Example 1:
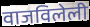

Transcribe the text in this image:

वाजविलेली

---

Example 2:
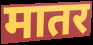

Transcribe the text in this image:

मातर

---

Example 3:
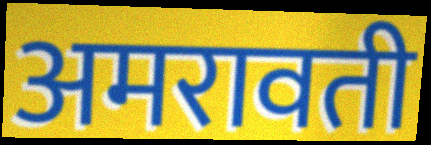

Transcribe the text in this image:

अमरावती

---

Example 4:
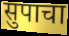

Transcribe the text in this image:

सुपाचा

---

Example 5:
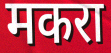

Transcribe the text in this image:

मकरा